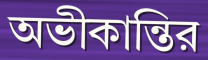
অভীকান্তির